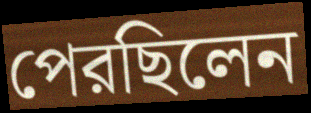
পেরছিলেন